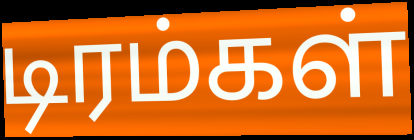
டிரம்கள்